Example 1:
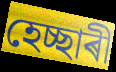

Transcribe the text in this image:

হেচ্ছাৰী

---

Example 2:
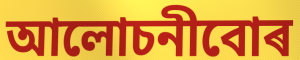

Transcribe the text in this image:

আলোচনীবোৰ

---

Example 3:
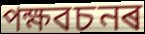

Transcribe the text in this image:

পক্ষবচনৰ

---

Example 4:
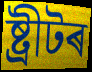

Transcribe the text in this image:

ষ্ট্ৰীটৰ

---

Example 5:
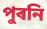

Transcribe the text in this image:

পুৰনি